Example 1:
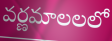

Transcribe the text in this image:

వర్ణమాలలలో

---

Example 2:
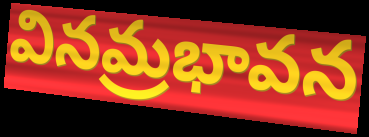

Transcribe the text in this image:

వినమ్రభావన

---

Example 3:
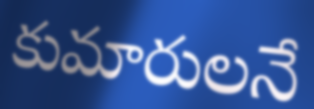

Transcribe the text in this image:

కుమారులనే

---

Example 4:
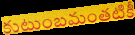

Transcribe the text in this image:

కుటుంబమంతటికీ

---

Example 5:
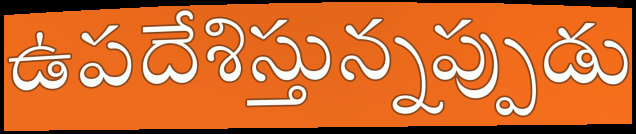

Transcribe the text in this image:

ఉపదేశిస్తున్నప్పుడు